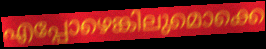
എപ്പോഴെങ്കിലുമൊക്കെ